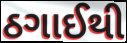
ઠગાઈથી